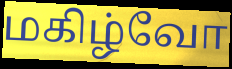
மகிழ்வோ